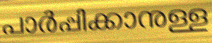
പാർപ്പിക്കാനുള്ള